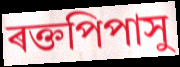
ৰক্তপিপাসু